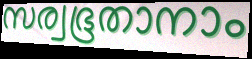
സര്വഭൂതാനാം